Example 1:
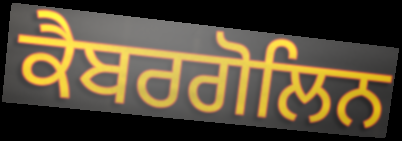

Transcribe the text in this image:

ਕੈਬਰਗੋਲਿਨ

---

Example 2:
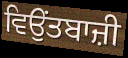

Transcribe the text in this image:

ਵਿਉਂਤਬਾਜ਼ੀ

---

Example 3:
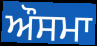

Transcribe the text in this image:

ਔਸਮਾ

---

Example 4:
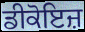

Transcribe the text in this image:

ਡੀਕੋਇਜ਼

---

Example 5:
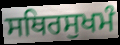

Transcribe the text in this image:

ਸਥਿਰਸੁਖਮੰ